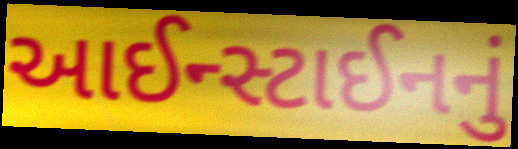
આઈન્સ્ટાઈનનું